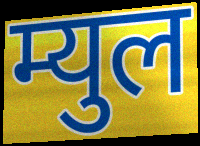
म्युल